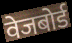
वेजबोर्ड